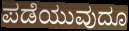
ಪಡೆಯುವುದೂ